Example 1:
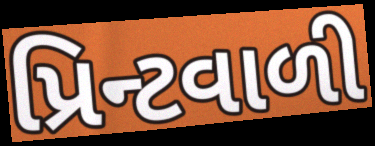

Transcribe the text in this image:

પ્રિન્ટવાળી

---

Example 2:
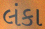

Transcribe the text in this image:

લંકા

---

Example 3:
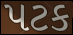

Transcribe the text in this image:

પટક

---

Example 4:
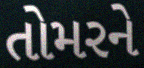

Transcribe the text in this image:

તોમરને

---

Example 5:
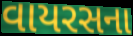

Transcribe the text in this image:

વાયરસના